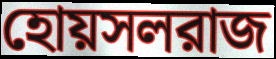
হোয়সলরাজ